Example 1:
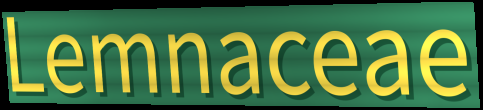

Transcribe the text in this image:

Lemnaceae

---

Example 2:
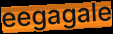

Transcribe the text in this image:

eegagale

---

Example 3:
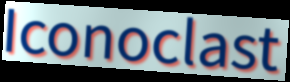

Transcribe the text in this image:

Iconoclast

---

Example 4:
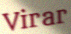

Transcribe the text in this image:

Virar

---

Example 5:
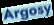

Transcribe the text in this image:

Argosy